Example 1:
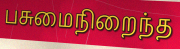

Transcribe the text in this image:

பசுமைநிறைந்த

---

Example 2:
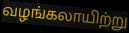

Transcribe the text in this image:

வழங்கலாயிற்று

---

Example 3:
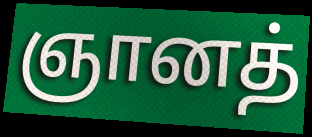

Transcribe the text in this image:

ஞானத்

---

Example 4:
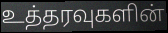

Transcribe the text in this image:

உத்தரவுகளின்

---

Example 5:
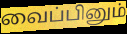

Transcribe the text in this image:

வைப்பினும்